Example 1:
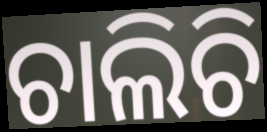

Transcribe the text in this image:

ଚାଲିଚି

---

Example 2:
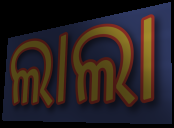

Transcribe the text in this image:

ଲାଲା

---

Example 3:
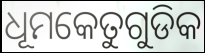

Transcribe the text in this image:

ଧୂମକେତୁଗୁଡିକ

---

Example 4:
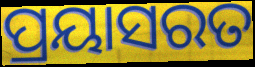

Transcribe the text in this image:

ପ୍ରୟାସରତ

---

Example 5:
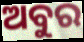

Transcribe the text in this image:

ଅବୁର